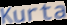
Kurta